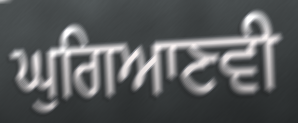
ਘੁਗਿਆਣਵੀ